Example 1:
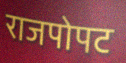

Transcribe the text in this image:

राजपोपट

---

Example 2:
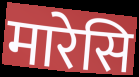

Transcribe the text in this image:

मारेसि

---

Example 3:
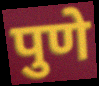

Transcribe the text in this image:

पुणे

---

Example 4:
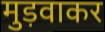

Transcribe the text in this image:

मुड़वाकर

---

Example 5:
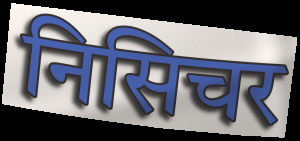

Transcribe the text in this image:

निसिचर